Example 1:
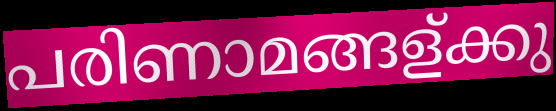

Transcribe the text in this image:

പരിണാമങ്ങള്ക്കു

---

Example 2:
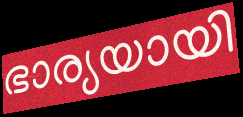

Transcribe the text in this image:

ഭാര്യയായി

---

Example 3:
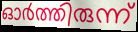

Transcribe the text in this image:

ഓർത്തിരുന്ന്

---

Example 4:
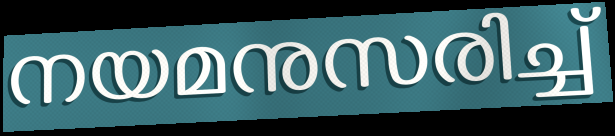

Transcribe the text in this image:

നയമനുസരിച്ച്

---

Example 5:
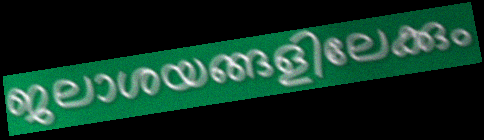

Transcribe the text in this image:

ജലാശയങ്ങളിലേക്കും